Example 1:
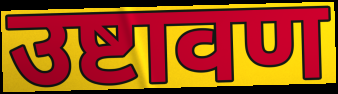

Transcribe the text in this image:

उष्टावण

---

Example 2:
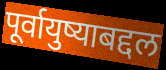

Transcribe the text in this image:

पूर्वायुष्याबद्दल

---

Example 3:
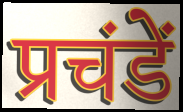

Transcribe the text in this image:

प्रचंडें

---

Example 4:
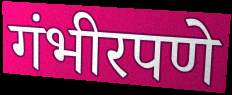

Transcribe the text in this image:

गंभीरपणे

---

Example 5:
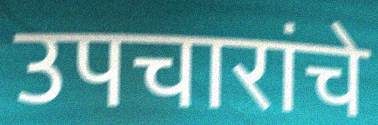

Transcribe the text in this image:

उपचारांचे